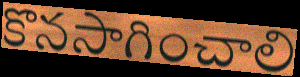
కొనసాగించాలి